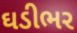
ઘડીભર